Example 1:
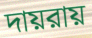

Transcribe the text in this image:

দায়রায়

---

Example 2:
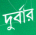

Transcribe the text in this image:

দুর্বার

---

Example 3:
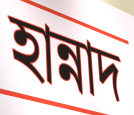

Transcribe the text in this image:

হান্নাদ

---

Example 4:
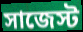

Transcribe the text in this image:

সাজেস্ট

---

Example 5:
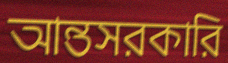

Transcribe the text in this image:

আন্তসরকারি